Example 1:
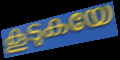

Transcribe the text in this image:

കൂടുകയേ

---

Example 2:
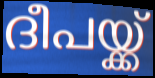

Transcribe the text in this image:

ദീപയ്ക്ക്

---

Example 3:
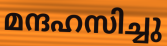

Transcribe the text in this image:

മന്ദഹസിച്ചു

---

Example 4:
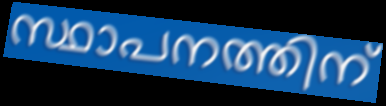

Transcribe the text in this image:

സ്ഥാപനത്തിന്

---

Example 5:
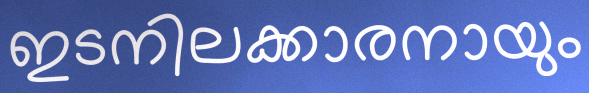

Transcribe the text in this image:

ഇടനിലക്കാരനായും